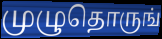
முழுதொருங்